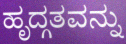
ಹೃದ್ಗತವನ್ನು